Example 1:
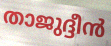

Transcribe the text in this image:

താജുദ്ദീൻ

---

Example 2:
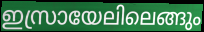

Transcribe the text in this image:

ഇസ്രായേലിലെങ്ങും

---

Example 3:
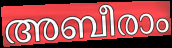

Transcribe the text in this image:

അബീരാം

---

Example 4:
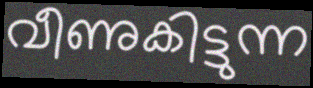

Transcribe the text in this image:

വീണുകിട്ടുന്ന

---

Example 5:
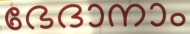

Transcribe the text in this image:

ഭേദാനാം